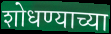
शोधण्याच्या